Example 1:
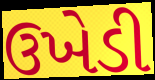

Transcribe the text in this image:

ઉખેડી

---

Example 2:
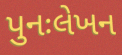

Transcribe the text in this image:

પુનઃલેખન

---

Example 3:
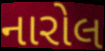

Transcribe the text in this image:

નારોલ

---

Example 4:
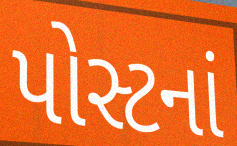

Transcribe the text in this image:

પોસ્ટનાં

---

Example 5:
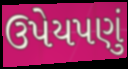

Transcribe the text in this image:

ઉપેયપણું